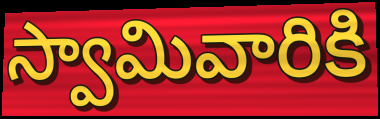
స్వామివారికి